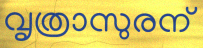
വൃത്രാസുരന്